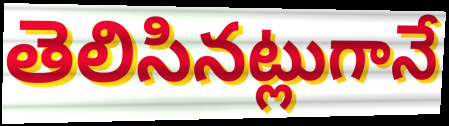
తెలిసినట్లుగానే